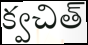
క్వచిత్